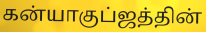
கன்யாகுப்ஜத்தின்